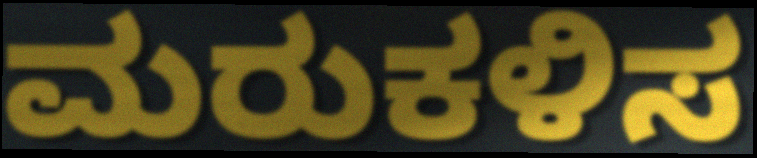
ಮರುಕಳಿಸ